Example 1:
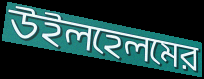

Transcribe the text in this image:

উইলহেলমের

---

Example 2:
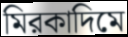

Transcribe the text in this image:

মিরকাদিমে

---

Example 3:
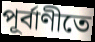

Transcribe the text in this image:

পূর্বাণীতে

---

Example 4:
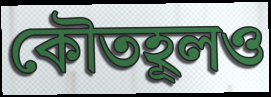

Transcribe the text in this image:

কৌতহূলও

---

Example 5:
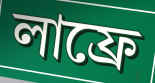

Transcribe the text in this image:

লাফ্রে